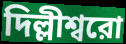
দিল্লীশ্বরো